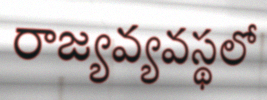
రాజ్యవ్యవస్థలో